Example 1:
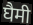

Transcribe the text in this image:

घैमी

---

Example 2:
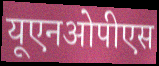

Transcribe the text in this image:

यूएनओपीएस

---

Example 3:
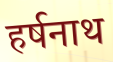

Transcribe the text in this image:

हर्षनाथ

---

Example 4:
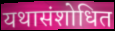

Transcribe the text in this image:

यथासंशोधित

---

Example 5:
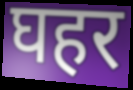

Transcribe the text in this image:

घहर